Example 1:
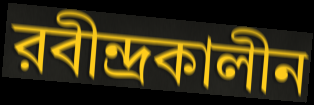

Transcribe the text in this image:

রবীন্দ্রকালীন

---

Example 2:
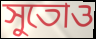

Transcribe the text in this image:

সুতোও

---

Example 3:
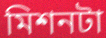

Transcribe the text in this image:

মিশনটা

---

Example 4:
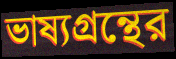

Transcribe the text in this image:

ভাষ্যগ্রন্থের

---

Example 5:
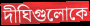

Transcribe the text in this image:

দীঘিগুলোকে